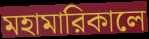
মহামারিকালে